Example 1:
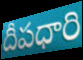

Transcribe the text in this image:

దీపధారి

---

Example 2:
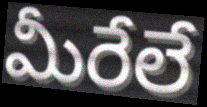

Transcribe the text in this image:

మీరేలే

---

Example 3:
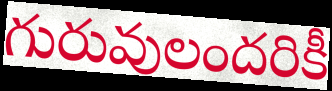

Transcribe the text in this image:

గురువులందరికీ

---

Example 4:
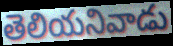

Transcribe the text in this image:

తెలియనివాడు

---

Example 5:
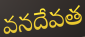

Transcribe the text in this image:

వనదేవత